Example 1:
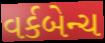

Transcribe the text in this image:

વર્કબેન્ચ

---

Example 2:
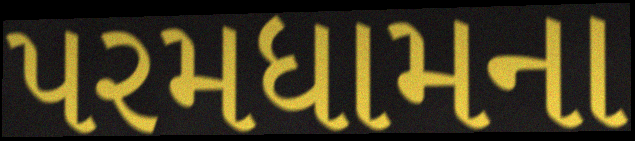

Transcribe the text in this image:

પરમધામના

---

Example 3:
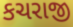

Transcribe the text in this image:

કચરાજી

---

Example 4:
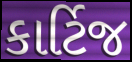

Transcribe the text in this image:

કાર્ટિજ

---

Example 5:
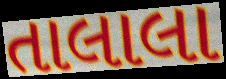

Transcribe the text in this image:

તાલાલા